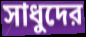
সাধুদের